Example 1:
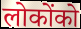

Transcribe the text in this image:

लोकोंको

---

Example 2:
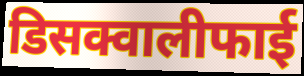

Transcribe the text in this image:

डिसक्वालीफाई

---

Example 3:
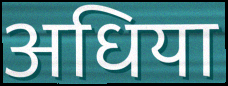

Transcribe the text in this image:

अधिया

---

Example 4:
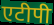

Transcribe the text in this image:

एटीपी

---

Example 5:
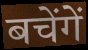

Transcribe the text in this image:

बचेंगें